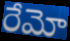
రేమో